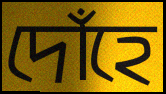
দোঁহে